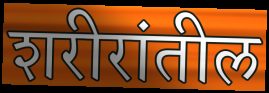
शरीरांतील